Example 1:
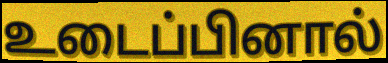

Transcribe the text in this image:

உடைப்பினால்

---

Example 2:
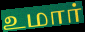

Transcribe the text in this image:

உமார்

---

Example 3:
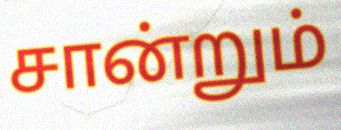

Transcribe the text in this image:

சான்றும்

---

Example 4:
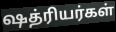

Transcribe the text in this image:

ஷத்ரியர்கள்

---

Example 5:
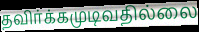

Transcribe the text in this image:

தவிர்க்கமுடிவதில்லை